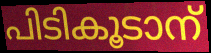
പിടികൂടാന്